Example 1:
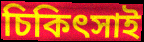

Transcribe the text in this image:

চিকিৎসাই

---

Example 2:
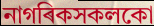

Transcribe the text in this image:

নাগৰিকসকলকো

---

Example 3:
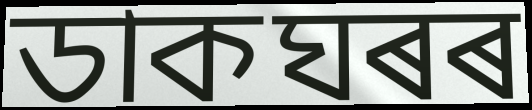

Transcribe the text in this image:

ডাকঘৰৰ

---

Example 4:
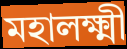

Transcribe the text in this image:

মহালক্ষ্মী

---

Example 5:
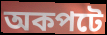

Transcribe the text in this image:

অকপটে